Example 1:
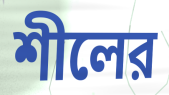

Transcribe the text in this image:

শীলের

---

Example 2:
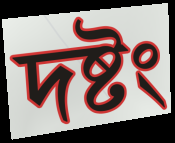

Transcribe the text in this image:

দষ্টং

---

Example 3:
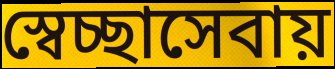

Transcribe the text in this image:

স্বেচ্ছাসেবায়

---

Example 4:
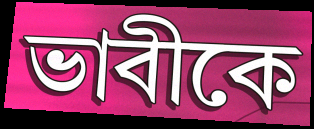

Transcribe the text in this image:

ভাবীকে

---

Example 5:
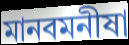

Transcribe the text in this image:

মানবমনীষা